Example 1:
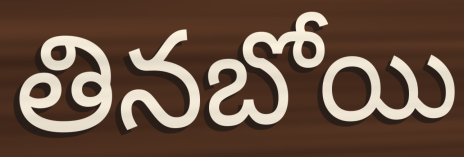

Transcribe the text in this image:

తినబోయి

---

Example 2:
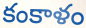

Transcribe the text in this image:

కంకాళం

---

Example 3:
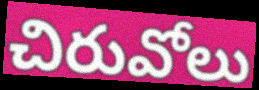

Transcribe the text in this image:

చిరువోలు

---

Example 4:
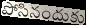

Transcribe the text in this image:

పోసినందుకు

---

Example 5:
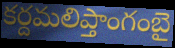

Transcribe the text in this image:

కర్దమలిప్తాంగంబై